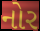
નોર